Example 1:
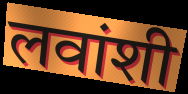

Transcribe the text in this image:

लवांशी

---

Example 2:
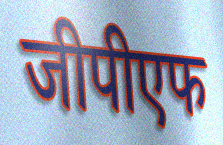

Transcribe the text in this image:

जीपीएफ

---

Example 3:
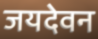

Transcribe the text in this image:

जयदेवन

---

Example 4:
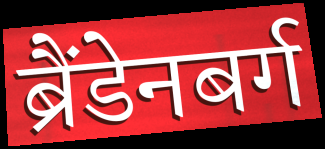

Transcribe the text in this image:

ब्रैंडेनबर्ग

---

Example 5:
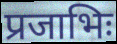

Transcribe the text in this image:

प्रजाभिः